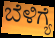
ಬೆಳಿಗ್ಯೆ